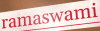
ramaswami